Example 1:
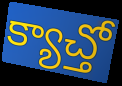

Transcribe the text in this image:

క్యాచ్తో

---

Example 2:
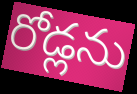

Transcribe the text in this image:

రోడ్లను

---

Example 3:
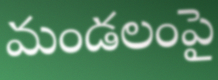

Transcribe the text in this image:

మండలంపై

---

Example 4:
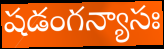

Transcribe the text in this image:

షడంగన్యాసః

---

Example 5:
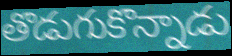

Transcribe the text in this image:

తొడుగుకొన్నాడు